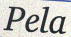
Pela